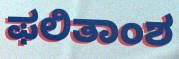
ಫಲಿತಾಂಶ